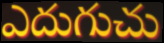
ఎదుగుచు